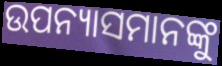
ଉପନ୍ୟାସମାନଙ୍କୁ